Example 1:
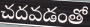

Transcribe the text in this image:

చదవడంతో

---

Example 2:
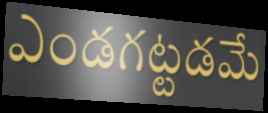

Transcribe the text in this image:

ఎండగట్టడమే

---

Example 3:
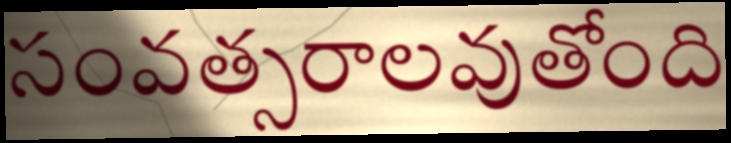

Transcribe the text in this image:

సంవత్సరాలవుతోంది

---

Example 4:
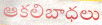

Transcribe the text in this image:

ఆకలిబాధలు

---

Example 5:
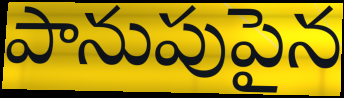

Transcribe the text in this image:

పానుపుపైన